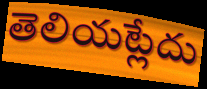
తెలియట్లేదు